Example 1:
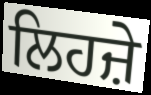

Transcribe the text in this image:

ਲਿਹਜ਼ੇ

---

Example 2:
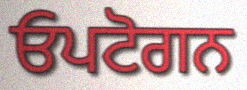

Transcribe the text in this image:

ਓਪਟੋਗਨ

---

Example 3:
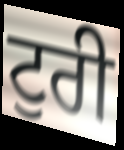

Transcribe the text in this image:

ਟੁਰੀ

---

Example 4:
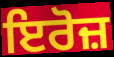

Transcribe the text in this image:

ਇਰੋਜ਼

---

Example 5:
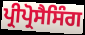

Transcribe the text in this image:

ਪ੍ਰੀਪ੍ਰੋਸੈਸਿੰਗ